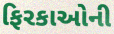
ફિરકાઓની